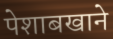
पेशाबखाने